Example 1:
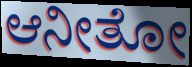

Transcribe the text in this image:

ಆನೀತೋ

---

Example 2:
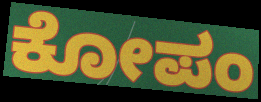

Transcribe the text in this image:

ಕೋಪಂ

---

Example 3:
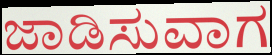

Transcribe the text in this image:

ಜಾಡಿಸುವಾಗ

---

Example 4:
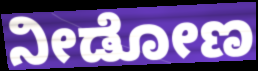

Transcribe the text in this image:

ನೀಡೋಣ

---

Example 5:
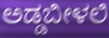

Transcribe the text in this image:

ಅಡ್ಡಬೀಳಲಿ